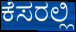
ಕೆಸರಲ್ಲಿ